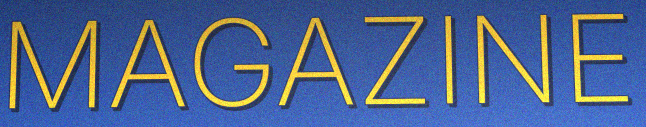
MAGAZINE